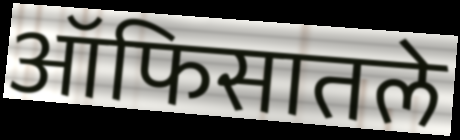
ऑफिसातले